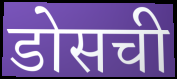
डोसची